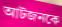
আটজনকে